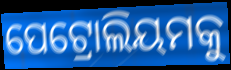
ପେଟ୍ରୋଲିୟମକୁ